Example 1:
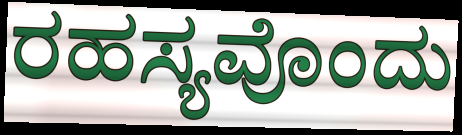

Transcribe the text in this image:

ರಹಸ್ಯವೊಂದು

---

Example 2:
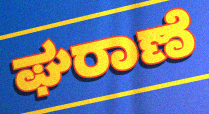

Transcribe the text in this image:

ಘರಾಣೆ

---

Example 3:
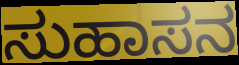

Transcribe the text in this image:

ಸುಹಾಸನ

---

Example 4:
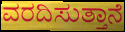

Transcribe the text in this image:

ವರದಿಸುತ್ತಾನೆ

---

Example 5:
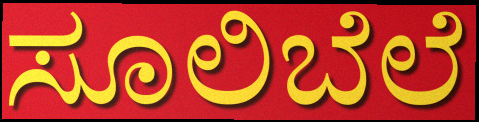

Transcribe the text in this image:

ಸೂಲಿಬೆಲೆ